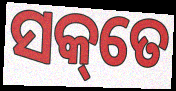
ସକ୍‌ତେ